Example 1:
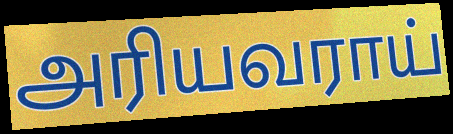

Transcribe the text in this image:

அரியவராய்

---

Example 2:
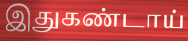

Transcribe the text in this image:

இதுகண்டாய்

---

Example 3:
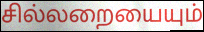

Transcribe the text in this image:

சில்லறையையும்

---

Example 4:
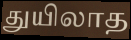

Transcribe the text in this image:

துயிலாத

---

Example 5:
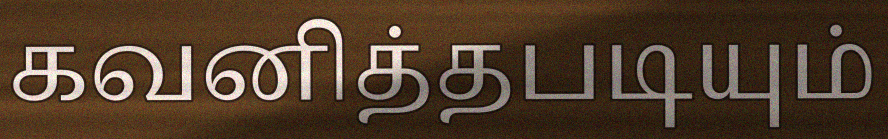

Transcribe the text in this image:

கவனித்தபடியும்